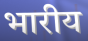
भारीय